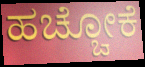
ಹಚ್ಚೋಕೆ